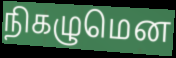
நிகழுமென